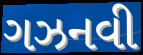
ગઝનવી